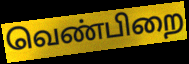
வெண்பிறை